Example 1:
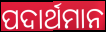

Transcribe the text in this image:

ପଦାର୍ଥମାନ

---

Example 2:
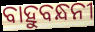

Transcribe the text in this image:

ବାହୁବନ୍ଧନୀ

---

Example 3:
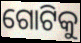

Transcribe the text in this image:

ଗୋଟିକୁ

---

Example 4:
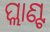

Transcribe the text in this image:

ପ୍ଲାଣ୍ଟ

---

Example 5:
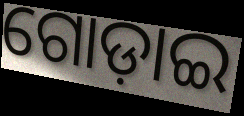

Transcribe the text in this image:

ଗୋଡ଼ାଇ